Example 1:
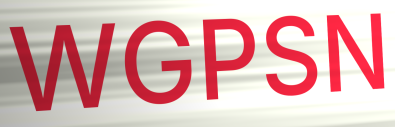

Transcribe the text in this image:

WGPSN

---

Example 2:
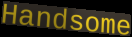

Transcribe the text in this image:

Handsome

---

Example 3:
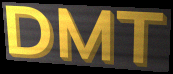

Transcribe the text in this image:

DMT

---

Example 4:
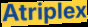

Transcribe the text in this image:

Atriplex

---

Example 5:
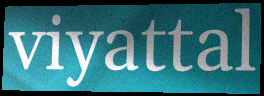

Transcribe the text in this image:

viyattal